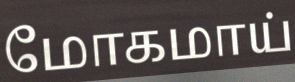
மோகமாய்